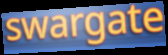
swargate